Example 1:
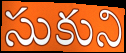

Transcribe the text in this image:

సుకుని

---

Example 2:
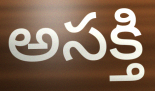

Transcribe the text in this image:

అసక్తి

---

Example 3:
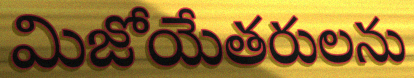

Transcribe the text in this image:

మిజోయేతరులను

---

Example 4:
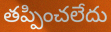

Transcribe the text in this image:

తప్పించలేదు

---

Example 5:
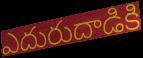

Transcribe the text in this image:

ఎదురుదాడికి